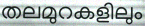
തലമുറകളിലും